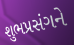
શુભપ્રસંગને